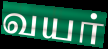
வயர்